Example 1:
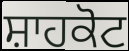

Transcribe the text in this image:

ਸ਼ਾਹਕੋਟ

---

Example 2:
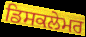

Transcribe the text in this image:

ਡਿਸਕਲੇਮਰ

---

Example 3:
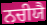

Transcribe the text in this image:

ਨਚੀਯੈ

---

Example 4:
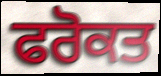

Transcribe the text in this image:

ਫਰੋਕਤ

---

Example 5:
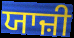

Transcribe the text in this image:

ਯਾਜ਼ੀ